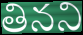
తినని